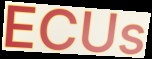
ECUs